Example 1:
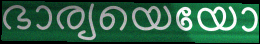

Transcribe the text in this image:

ഭാര്യയെയോ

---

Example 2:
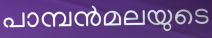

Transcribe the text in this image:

പാമ്പൻമലയുടെ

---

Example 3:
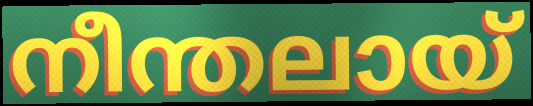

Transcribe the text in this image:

നീന്തലായ്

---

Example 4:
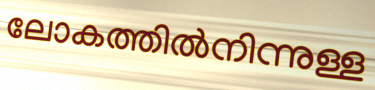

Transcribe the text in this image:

ലോകത്തിൽനിന്നുള്ള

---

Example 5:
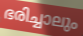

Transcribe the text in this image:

ഭരിച്ചാലും